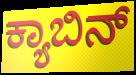
ಕ್ಯಾಬಿನ್